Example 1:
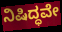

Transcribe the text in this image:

ನಿಷಿದ್ಧವೇ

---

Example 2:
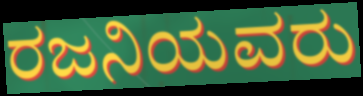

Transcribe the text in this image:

ರಜನಿಯವರು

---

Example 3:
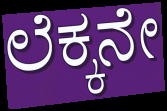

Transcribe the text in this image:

ಲೆಕ್ಕನೇ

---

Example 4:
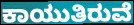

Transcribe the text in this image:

ಕಾಯುತಿರುವೆ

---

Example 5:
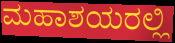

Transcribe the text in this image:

ಮಹಾಶಯರಲ್ಲಿ